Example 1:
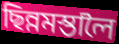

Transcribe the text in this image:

ছিন্নমস্তালৈ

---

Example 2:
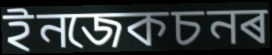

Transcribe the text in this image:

ইনজেকচনৰ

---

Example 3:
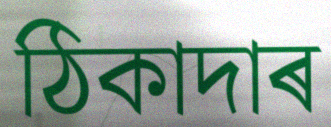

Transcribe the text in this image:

ঠিকাদাৰ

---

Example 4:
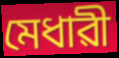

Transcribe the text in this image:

মেধাৱী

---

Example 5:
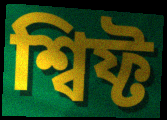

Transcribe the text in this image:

শ্বিফ্ট